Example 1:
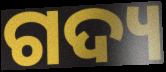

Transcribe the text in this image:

ଗଦ୍ୟ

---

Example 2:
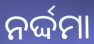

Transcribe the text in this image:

ନର୍ଦ୍ଦମା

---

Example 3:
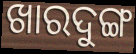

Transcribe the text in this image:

ଖାରଦୁଙ୍ଗ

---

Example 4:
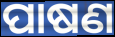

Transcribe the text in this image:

ପାଷଣ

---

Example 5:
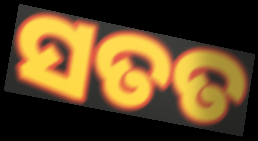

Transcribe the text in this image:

ସତତ